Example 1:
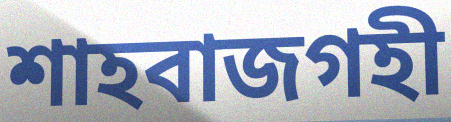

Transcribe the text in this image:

শাহবাজগহী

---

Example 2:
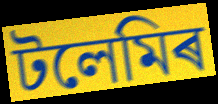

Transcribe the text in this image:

টলেমিৰ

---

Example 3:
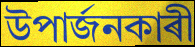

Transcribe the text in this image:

উপাৰ্জনকাৰী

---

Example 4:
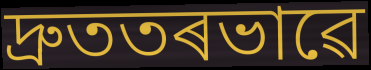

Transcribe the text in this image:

দ্ৰুততৰভাৱে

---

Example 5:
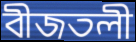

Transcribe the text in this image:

বীজতলী